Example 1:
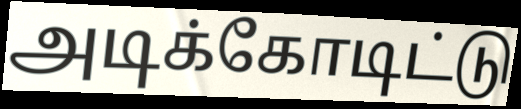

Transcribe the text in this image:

அடிக்கோடிட்டு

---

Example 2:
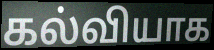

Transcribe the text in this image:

கல்வியாக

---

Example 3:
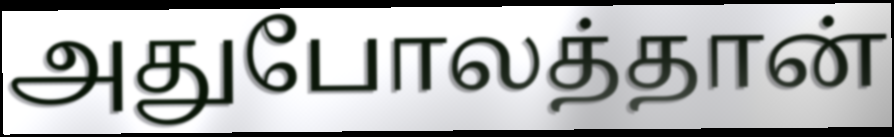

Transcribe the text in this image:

அதுபோலத்தான்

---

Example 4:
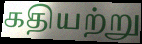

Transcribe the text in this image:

கதியற்று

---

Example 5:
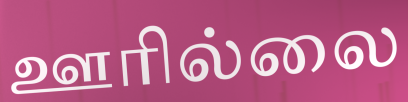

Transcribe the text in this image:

ஊரில்லை